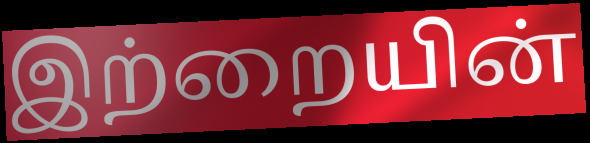
இற்றையின்